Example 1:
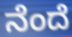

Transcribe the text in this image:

ನೆಂದೆ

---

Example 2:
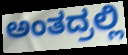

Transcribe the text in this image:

ಅಂತದ್ರಲ್ಲಿ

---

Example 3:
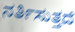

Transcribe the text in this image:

ನರ್ತಿಸುತ್ತದೆ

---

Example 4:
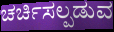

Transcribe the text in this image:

ಚರ್ಚಿಸಲ್ಪಡುವ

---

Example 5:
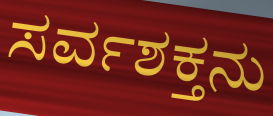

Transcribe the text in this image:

ಸರ್ವಶಕ್ತನು